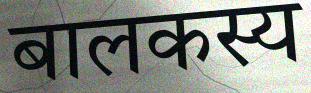
बालकस्य